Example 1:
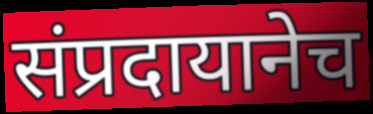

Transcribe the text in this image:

संप्रदायानेच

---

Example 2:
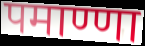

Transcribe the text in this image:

पमाण्णा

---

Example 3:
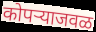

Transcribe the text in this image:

कोपऱ्याजवळ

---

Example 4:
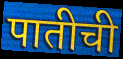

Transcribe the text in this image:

पातीची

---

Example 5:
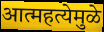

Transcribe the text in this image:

आत्महत्येमुळे